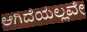
ಆಗಿದೆಯಲ್ಲವೇ